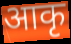
आकृ